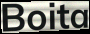
Boita